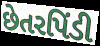
છેતરપિંડી